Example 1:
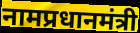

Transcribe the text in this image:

नामप्रधानमंत्री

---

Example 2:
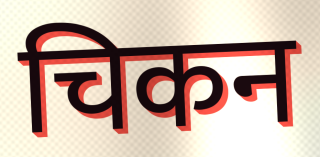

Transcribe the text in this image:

चिकन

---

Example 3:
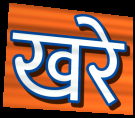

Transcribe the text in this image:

खरे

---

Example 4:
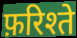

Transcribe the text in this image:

फ़रिश्ते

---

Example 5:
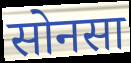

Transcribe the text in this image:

सोनसा